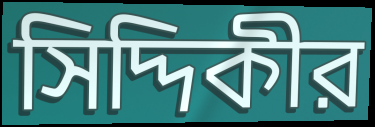
সিদ্দিকীর